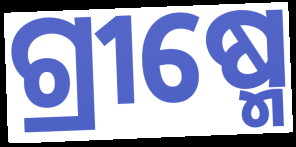
ଗ୍ରୀଷ୍ମେ